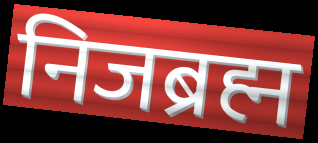
निजब्रह्म